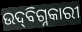
ଉଦ୍‌ବିଗ୍ନକାରୀ